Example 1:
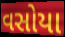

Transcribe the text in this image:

વસોયા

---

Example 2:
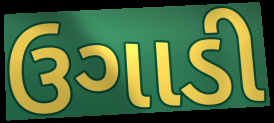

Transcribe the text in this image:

ઉગાડી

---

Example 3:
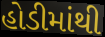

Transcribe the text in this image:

હોડીમાંથી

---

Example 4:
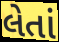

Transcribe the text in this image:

લેતાં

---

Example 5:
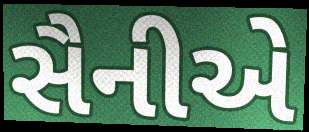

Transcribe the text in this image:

સૈનીએ